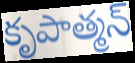
కృపాత్మన్